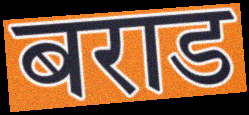
बराड